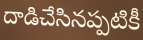
దాడిచేసినప్పటికీ